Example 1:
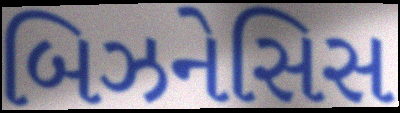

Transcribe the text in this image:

બિઝનેસિસ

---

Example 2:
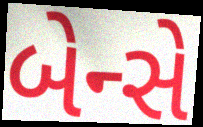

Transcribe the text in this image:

બેન્સે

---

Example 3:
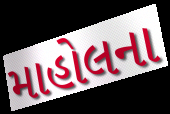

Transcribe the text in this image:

માહોલના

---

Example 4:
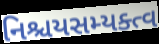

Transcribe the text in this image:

નિશ્ચયસમ્યક્ત્વ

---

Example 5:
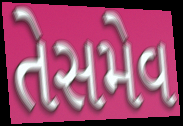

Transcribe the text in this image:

તેસમેવ